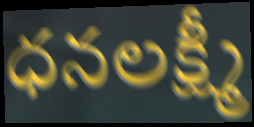
ధనలక్ష్మీ